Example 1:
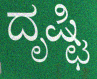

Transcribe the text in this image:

ದೃಷ್ಟಿ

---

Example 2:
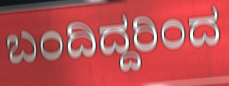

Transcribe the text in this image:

ಬಂದಿದ್ದರಿಂದ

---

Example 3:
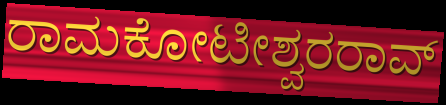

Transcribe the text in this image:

ರಾಮಕೋಟೀಶ್ವರರಾವ್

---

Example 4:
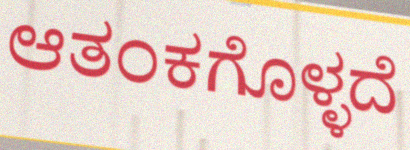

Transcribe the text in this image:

ಆತಂಕಗೊಳ್ಳದೆ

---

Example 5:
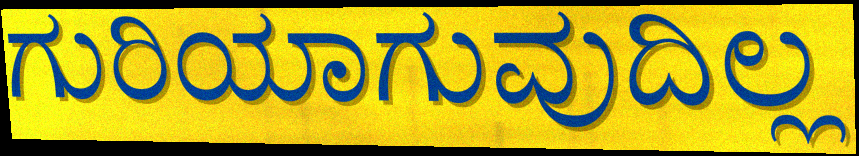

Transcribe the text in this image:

ಗುರಿಯಾಗುವುದಿಲ್ಲ